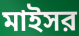
মাইসর